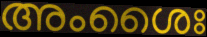
അംശൈഃ